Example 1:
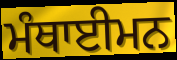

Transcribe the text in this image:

ਮੰਥਾਈਮਨ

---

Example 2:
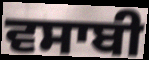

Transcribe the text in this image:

ਵਸਾਬੀ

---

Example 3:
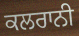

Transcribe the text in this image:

ਕਲਰਾਨੀ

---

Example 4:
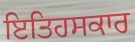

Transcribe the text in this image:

ਇਤਿਹਸਕਾਰ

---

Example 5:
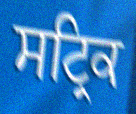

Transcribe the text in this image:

ਸਟ੍ਰਿਕ